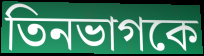
তিনভাগকে